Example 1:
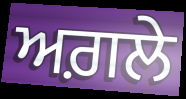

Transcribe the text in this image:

ਅਗ਼ਲੇ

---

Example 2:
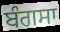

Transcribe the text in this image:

ਬੰਗਸਾ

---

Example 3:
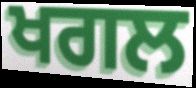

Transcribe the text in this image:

ਖਗਲ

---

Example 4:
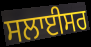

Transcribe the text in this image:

ਸਲਾਈਸਰ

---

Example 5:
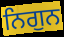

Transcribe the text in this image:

ਨਿਗੁਨ